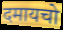
दमायचो